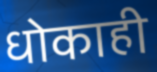
धोकाही